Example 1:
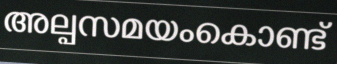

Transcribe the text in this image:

അല്പസമയംകൊണ്ട്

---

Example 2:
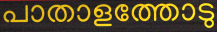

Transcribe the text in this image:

പാതാളത്തോടു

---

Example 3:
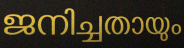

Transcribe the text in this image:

ജനിച്ചതായും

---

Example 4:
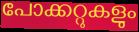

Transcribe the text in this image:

പോക്കറ്റുകളും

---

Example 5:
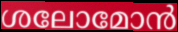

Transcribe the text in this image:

ശലോമോൻ